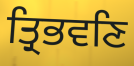
ਤ੍ਰਿਭਵਣਿ